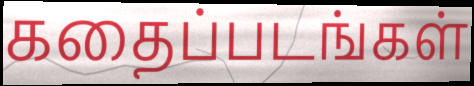
கதைப்படங்கள்